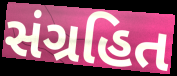
સંગ્રહિત